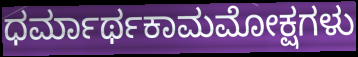
ಧರ್ಮಾರ್ಥಕಾಮಮೋಕ್ಷಗಳು